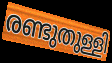
രണ്ടുതുള്ളി